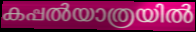
കപ്പൽയാത്രയിൽ